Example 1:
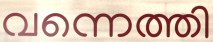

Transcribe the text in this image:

വന്നെത്തി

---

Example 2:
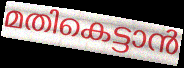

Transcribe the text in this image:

മതികെട്ടാൻ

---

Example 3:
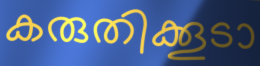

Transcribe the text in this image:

കരുതിക്കൂടാ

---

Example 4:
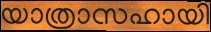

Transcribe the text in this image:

യാത്രാസഹായി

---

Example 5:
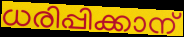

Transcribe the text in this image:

ധരിപ്പിക്കാന്